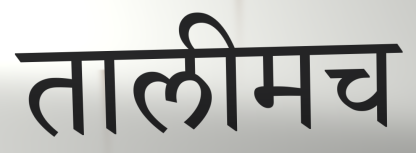
तालीमच